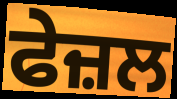
ਫੇਜ਼ਲ